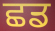
ਛਡ